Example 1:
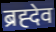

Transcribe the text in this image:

ब्रह्देव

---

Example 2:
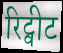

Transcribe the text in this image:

रिट्वीट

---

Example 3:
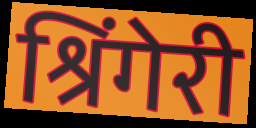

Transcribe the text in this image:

श्रिंगेरी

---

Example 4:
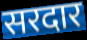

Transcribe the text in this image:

सरदार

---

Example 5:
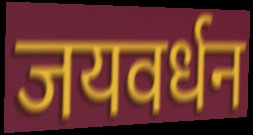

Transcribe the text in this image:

जयवर्धन